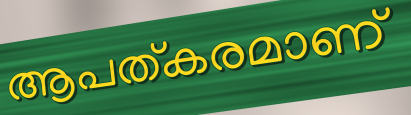
ആപത്കരമാണ്